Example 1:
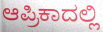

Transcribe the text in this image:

ಆಪ್ರಿಕಾದಲ್ಲಿ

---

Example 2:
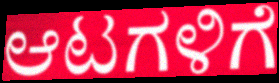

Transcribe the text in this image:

ಆಟಗಳಿಗೆ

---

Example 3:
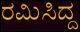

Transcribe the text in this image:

ರಮಿಸಿದ್ದ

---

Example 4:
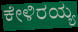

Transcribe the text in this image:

ಕೇಳಿರಯ್ಯ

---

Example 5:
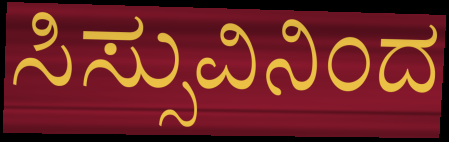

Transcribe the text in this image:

ಸಿಸ್ಸುವಿನಿಂದ